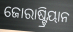
ଜୋରାଷ୍ଟ୍ରିୟାନ